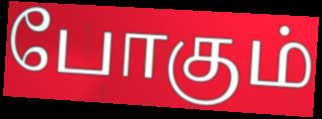
போகும்